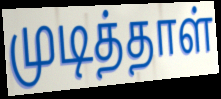
முடித்தாள்